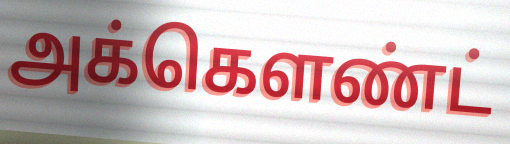
அக்கெளண்ட்